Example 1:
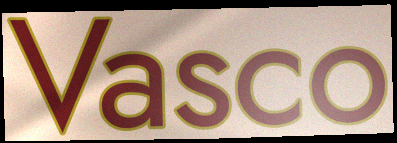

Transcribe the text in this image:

Vasco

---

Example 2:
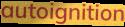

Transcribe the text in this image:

autoignition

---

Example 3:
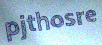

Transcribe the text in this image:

pjthosre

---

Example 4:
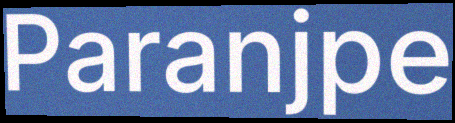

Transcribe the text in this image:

Paranjpe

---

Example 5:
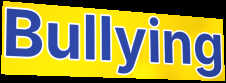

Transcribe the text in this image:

Bullying